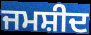
ਜਮਸ਼ੀਦ